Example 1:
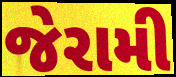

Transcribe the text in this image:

જેરામી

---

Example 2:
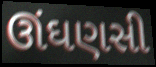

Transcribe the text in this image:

ઊંઘણસી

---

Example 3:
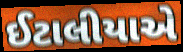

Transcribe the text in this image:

ઈટાલીયાએ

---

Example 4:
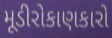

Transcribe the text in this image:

મૂડીરોકાણકારો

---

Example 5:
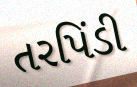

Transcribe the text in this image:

તરપિંડી